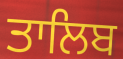
ਤਾਲਿਬ